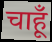
चाहूँ